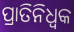
ପ୍ରାତିନିଧ୍ଵକ